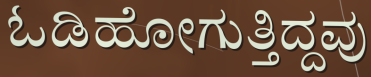
ಓಡಿಹೋಗುತ್ತಿದ್ದವು